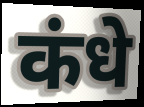
कंधे